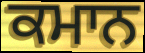
ਕਮਾਨ